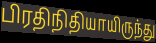
பிரதிநிதியாயிருந்து